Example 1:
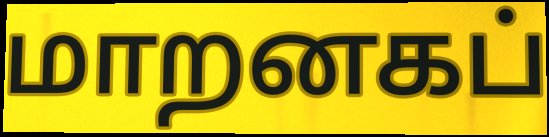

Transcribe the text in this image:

மாறனகப்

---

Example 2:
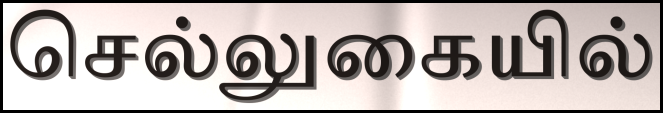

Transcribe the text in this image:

செல்லுகையில்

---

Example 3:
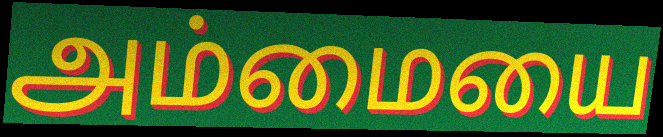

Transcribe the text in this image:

அம்மையை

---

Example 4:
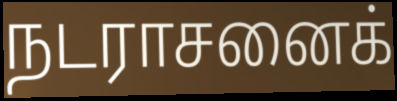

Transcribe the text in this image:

நடராசனைக்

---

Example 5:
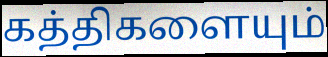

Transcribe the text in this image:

கத்திகளையும்